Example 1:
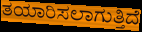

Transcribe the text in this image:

ತಯಾರಿಸಲಾಗುತ್ತಿದೆ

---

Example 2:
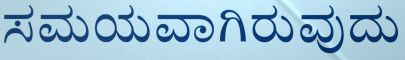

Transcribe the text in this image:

ಸಮಯವಾಗಿರುವುದು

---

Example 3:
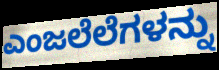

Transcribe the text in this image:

ಎಂಜಲೆಲೆಗಳನ್ನು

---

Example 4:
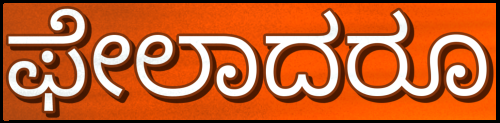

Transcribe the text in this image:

ಫೇಲಾದರೂ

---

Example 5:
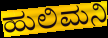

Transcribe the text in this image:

ಹುಲಿಮನಿ